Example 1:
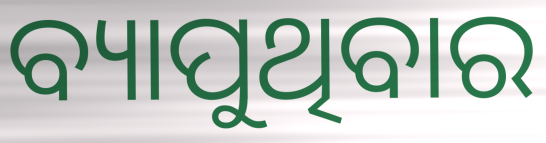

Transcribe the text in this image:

ବ୍ୟାପୁଥିବାର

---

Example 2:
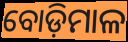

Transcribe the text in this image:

ବୋଡ଼ିମାଳ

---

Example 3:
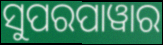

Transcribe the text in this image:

ସୁପରପାୱାର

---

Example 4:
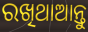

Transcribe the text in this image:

ରଖିଥାଆନ୍ତୁ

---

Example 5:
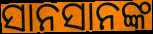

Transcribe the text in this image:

ସାନସାନଙ୍କ